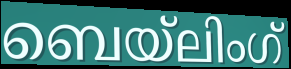
ബെയ്ലിംഗ്